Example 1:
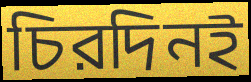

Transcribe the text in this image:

চিরদিনই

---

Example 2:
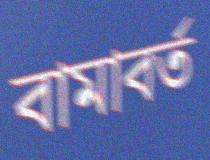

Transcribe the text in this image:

বামাবর্ত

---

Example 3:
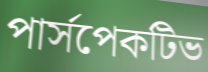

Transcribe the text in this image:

পার্সপেকটিভ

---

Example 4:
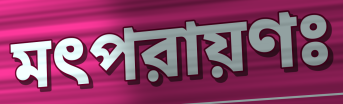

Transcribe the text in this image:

মৎপরায়ণঃ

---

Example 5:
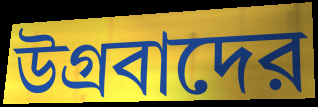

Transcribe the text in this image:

উগ্রবাদের